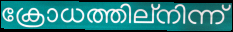
ക്രോധത്തില്നിന്ന്